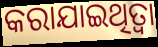
କରାଯାଇଥିତ୍ବା